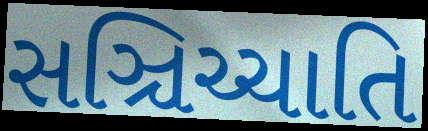
સઞ્ચિચ્ચાતિ